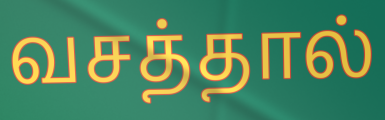
வசத்தால்